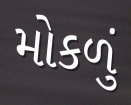
મોકળું